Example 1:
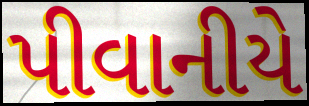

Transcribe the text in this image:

પીવાનીયે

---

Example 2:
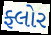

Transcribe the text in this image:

ફ્લોર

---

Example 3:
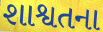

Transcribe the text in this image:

શાશ્વતના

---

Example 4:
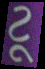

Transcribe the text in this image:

ટૂ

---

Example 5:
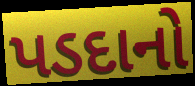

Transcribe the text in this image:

પડદાનો